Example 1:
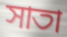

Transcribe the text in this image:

সাতা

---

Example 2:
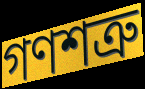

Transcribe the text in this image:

গণশত্রু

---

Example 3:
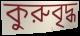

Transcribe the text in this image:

কুরুবৃদ্ধ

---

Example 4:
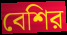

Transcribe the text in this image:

বেশির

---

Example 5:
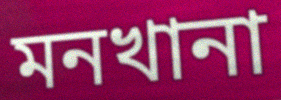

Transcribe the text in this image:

মনখানা